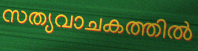
സത്യവാചകത്തിൽ